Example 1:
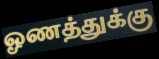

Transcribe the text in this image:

ஓணத்துக்கு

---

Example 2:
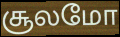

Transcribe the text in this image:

சூலமோ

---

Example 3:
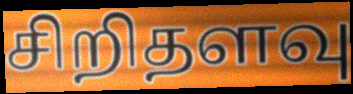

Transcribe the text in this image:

சிறிதளவு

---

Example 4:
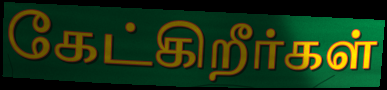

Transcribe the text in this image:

கேட்கிறீர்கள்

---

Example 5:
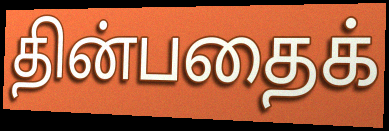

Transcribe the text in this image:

தின்பதைக்